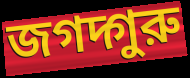
জগদ্গুরু